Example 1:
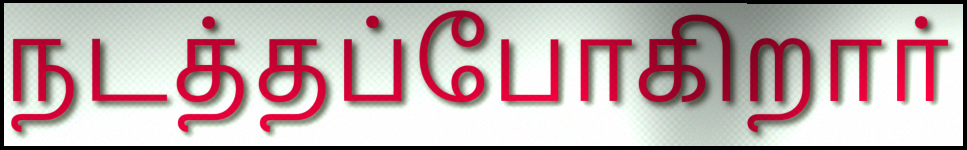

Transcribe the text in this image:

நடத்தப்போகிறார்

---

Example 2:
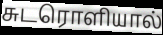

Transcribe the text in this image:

சுடரொளியால்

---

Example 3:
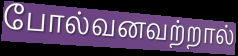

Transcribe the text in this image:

போல்வனவற்றால்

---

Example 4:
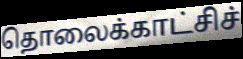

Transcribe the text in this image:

தொலைக்காட்சிச்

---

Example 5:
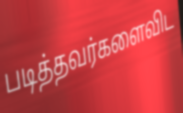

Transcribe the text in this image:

படித்தவர்களைவிட